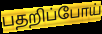
பதறிப்போய்